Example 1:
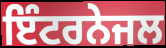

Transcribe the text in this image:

ਇੰਟਰਨੇਜਲ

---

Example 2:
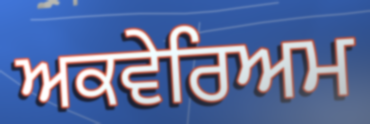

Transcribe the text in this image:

ਅਕਵੇਰਿਅਮ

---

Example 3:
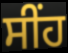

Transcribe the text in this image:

ਸੀਂਹ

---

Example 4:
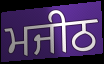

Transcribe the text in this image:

ਮਜੀਠ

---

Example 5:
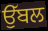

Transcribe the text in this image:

ਉੱਬਲ